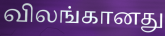
விலங்கானது